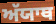
ਅੱਯਾਥ